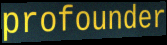
profounder